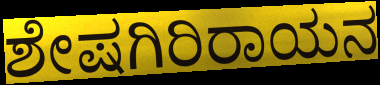
ಶೇಷಗಿರಿರಾಯನ